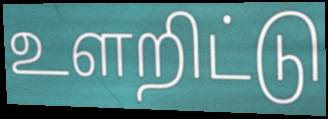
உளறிட்டு